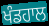
ਖੰਡਹਾਲ